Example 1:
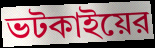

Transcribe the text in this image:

ভটকাইয়ের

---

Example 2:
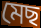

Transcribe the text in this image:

মেছ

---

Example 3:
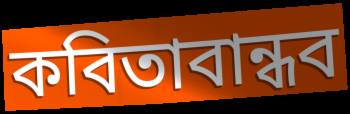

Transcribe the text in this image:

কবিতাবান্ধব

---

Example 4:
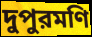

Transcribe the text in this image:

দুপুরমণি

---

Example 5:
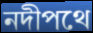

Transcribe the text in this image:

নদীপথে